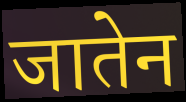
जातेन